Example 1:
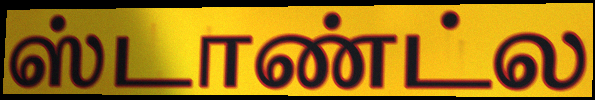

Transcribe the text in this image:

ஸ்டாண்ட்ல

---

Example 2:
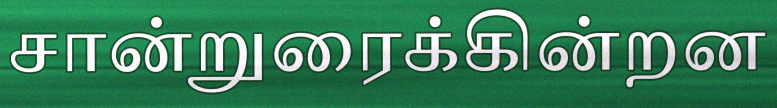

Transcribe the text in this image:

சான்றுரைக்கின்றன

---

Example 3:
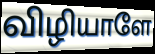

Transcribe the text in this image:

விழியாளே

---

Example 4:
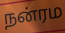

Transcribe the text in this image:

நன்ரம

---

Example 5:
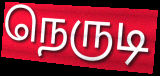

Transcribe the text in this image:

நெருடி